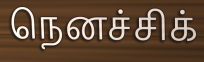
நெனச்சிக்